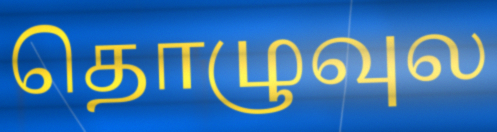
தொழுவுல